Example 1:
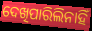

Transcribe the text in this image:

ଦେଖିପାରିଲିନାହିଁ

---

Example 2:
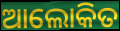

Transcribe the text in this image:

ଆଲୋକିତ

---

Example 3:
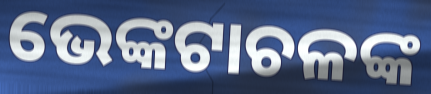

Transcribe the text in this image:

ଭେଙ୍କଟାଚଳଙ୍କ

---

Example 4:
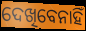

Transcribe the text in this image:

ଦେଖିବେନାହିଁ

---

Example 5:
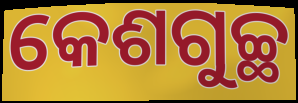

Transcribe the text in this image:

କେଶଗୁଚ୍ଛ